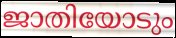
ജാതിയോടും